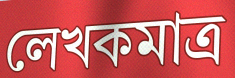
লেখকমাত্র